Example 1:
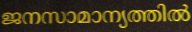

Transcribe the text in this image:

ജനസാമാന്യത്തിൽ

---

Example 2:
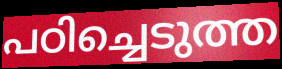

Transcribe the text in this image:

പഠിച്ചെടുത്ത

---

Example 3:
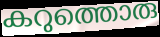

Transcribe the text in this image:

കറുത്തൊരു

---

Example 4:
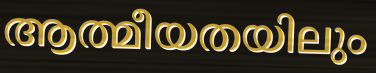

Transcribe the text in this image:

ആത്മീയതയിലും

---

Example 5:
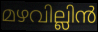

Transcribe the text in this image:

മഴവില്ലിൻ